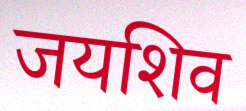
जयशिव